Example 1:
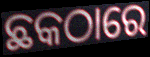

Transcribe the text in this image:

ଛକଠାରେ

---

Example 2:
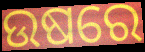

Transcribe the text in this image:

ଉଷରେ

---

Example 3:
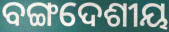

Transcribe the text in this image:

ବଙ୍ଗଦେଶୀୟ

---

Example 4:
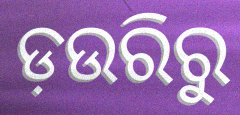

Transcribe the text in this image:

ଡ଼ଉରିରୁ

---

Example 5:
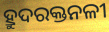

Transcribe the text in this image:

ହ୍ରୁଦରକ୍ତନଳୀ